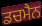
ਡਚਮੈਨ